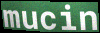
mucin